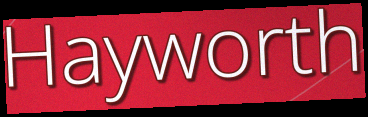
Hayworth